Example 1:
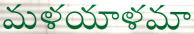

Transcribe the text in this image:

మళయాళమా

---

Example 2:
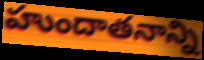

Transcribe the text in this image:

హుందాతనాన్ని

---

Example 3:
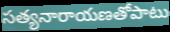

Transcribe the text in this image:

సత్యనారాయణతోపాటు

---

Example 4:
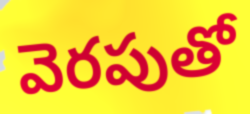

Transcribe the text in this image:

వెరపుతో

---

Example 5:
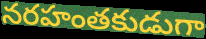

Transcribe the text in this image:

నరహంతకుడుగా